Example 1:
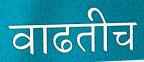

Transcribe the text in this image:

वाढतीच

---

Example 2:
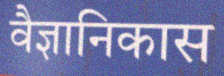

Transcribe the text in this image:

वैज्ञानिकास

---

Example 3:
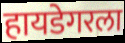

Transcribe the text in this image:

हायडेगरला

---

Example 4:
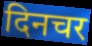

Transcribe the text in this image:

दिनचर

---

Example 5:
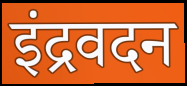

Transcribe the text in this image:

इंद्रवदन